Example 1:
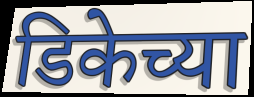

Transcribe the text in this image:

डिकेच्या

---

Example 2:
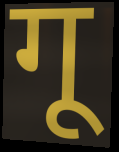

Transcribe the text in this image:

गू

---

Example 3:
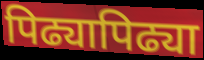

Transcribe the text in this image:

पिढ्यापिढ्या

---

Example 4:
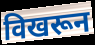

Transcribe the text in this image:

विखरून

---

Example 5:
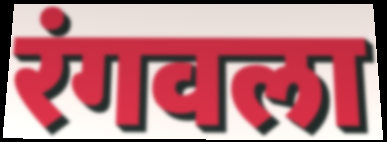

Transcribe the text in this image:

रंगवला